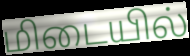
மிடையில்